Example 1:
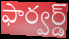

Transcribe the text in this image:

ఫార్వర్డ్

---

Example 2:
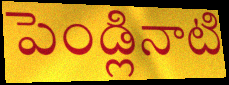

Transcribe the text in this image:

పెండ్లినాటి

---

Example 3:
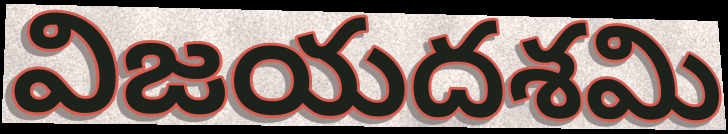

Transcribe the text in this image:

విజయదశమి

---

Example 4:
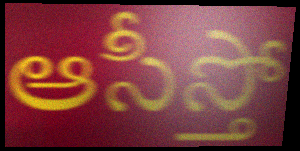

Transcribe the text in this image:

ఆసీస్తో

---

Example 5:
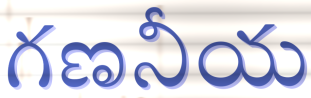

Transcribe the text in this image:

గణనీయ